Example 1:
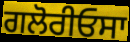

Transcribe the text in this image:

ਗਲੋਰੀਓਸਾ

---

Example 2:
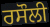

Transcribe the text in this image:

ਰਸੌਲੀ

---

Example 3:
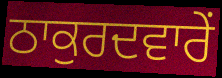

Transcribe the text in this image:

ਠਾਕੁਰਦਵਾਰੇਂ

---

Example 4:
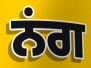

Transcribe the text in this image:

ਨਂਗ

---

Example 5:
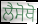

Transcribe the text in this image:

ਲੈਸੋਥੋ